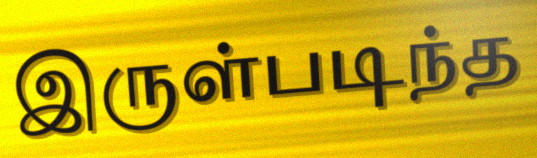
இருள்படிந்த